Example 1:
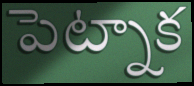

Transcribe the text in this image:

పెట్నాక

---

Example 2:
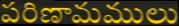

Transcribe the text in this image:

పరిణామములు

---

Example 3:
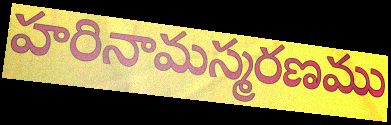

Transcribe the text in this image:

హరినామస్మరణము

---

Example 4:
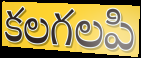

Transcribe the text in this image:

కలగలపి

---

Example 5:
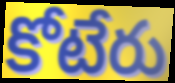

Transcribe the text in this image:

కోటేరు